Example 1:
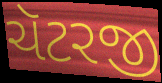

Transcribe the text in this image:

ચૅટરજી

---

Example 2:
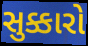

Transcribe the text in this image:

સુક્કારો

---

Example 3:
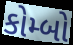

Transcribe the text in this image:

કોમ્બો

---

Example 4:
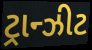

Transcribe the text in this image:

ટ્રાન્ઝીટ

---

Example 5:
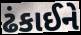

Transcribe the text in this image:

ઢંકાઈને